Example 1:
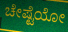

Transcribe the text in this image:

ಚೇಷ್ಟೆಯೋ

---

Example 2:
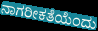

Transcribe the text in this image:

ನಾಗರೀಕತೆಯೆಂದು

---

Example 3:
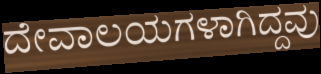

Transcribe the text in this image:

ದೇವಾಲಯಗಳಾಗಿದ್ದವು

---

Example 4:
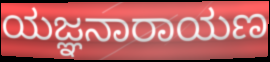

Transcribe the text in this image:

ಯಜ್ಞನಾರಾಯಣ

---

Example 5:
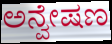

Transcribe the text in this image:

ಅನ್ವೇಷಣ